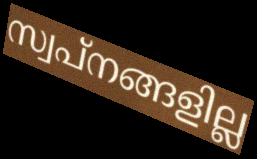
സ്വപ്നങ്ങളില്ല